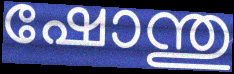
ഷോന്തു